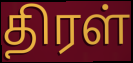
திரள்